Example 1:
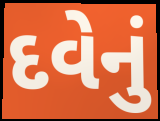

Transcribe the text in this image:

દવેનું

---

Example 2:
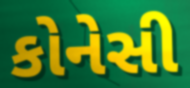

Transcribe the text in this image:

કોનેસી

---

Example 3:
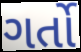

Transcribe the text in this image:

ગર્તો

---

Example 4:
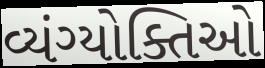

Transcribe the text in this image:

વ્યંગ્યોક્તિઓ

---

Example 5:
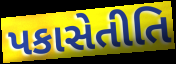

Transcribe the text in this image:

પકાસેતીતિ